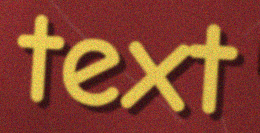
text